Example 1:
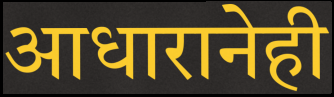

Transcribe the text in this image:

आधारानेही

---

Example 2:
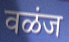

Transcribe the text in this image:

वळंज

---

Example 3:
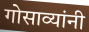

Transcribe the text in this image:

गोसाव्यांनी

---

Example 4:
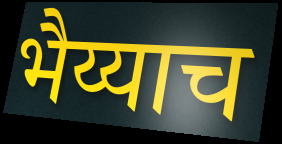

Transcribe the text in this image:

भैय्याच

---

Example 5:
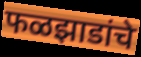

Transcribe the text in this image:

फळझाडांचे